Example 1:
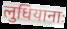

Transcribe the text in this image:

लुधियानाः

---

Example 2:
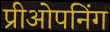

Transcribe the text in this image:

प्रीओपनिंग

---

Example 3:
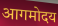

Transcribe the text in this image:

आगमोदय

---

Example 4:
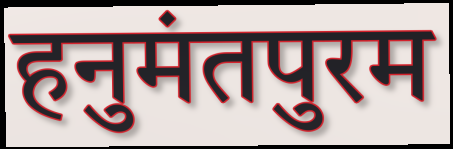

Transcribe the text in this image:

हनुमंतपुरम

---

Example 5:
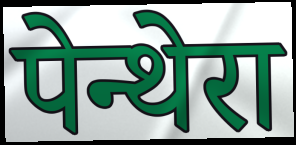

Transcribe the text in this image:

पेन्थेरा